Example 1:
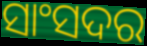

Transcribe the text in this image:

ସାଂସଦର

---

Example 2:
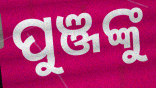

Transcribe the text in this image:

ପୁଞ୍ଜଙ୍କୁ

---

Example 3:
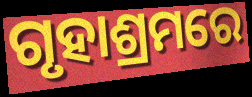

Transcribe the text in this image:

ଗୃହାଶ୍ରମରେ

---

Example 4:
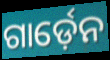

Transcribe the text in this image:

ଗାର୍ଡ଼େନ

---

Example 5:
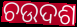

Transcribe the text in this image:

ଚଉଦଶ